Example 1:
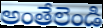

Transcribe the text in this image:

అంతేలెండి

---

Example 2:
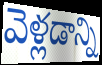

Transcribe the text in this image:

వెళ్లడాన్ని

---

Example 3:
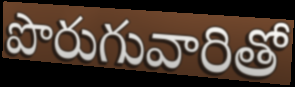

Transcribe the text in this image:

పొరుగువారితో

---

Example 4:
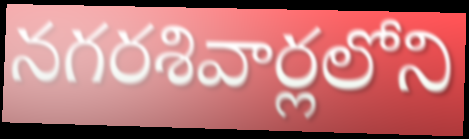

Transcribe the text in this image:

నగరశివార్లలోని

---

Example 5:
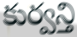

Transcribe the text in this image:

కుర్వన్తి